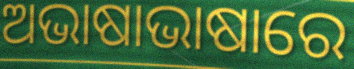
ଅଭାଷାଭାଷାରେ